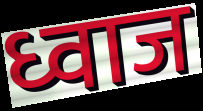
ध्वाज